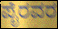
ಪೈರವರ